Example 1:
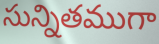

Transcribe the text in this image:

సున్నితముగా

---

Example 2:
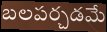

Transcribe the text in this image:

బలపర్చడమే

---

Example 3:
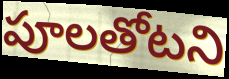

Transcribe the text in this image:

పూలతోటని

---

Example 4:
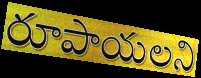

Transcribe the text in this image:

రూపాయలని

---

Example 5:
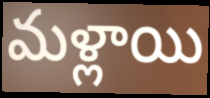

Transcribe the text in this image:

మళ్లాయి